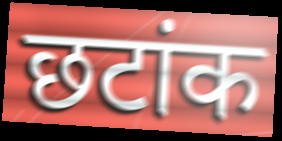
छटांक